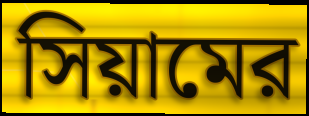
সিয়ামের